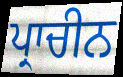
ਪ੍ਰਾਚੀਨ